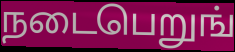
நடைபெறுங்